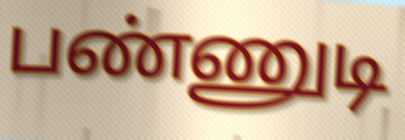
பண்ணுடி